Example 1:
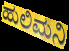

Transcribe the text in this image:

ಹುಲಿಮನಿ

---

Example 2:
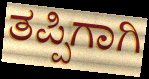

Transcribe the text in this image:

ತಪ್ಪಿಗಾಗಿ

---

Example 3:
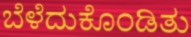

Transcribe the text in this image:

ಬೆಳೆದುಕೊಂಡಿತು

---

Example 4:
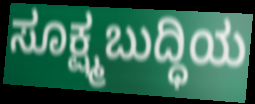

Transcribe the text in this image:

ಸೂಕ್ಷ್ಮಬುದ್ಧಿಯ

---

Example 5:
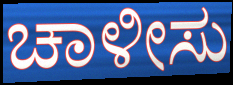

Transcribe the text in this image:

ಚಾಳೀಸು